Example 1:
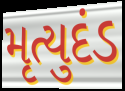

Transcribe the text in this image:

મૃત્યુદંડ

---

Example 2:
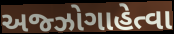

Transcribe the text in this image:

અજ્ઝોગાહેત્વા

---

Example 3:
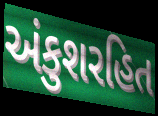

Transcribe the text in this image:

અંકુશરહિત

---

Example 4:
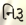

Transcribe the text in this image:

નિરૂ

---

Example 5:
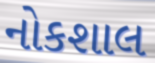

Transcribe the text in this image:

નોકશાલ